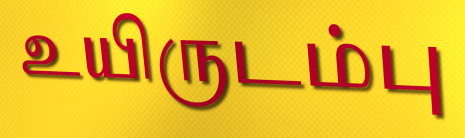
உயிருடம்பு